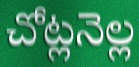
చోట్లనెల్ల